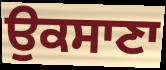
ਉਕਸਾਣਾ